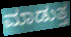
ಮಾಡುತ್ತ